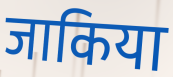
जाकिया